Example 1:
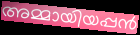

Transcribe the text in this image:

അമ്മായിയപ്പൻ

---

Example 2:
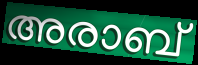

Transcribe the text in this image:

അരാബ്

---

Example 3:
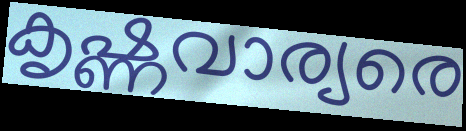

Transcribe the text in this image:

കൃഷ്ണവാര്യരെ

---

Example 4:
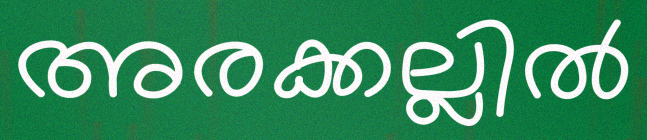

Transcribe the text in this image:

അരക്കല്ലിൽ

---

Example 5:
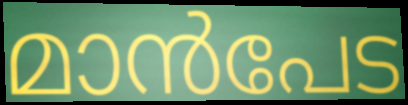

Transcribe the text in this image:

മാൻപേട